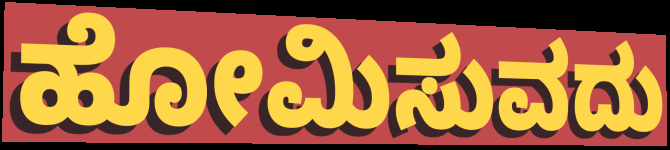
ಹೋಮಿಸುವದು